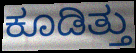
ಕೂಡಿತ್ತು